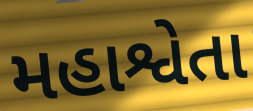
મહાશ્વેતા